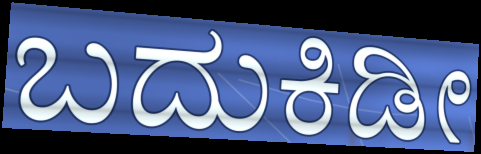
ಬದುಕಿಡೀ